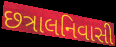
છત્રાલનિવાસી